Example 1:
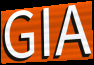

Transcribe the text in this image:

GIA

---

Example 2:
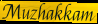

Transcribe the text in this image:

Muzhakkam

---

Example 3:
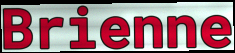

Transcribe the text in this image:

Brienne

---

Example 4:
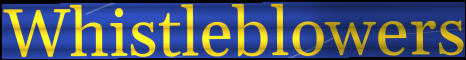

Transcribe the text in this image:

Whistleblowers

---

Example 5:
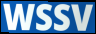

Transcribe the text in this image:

WSSV